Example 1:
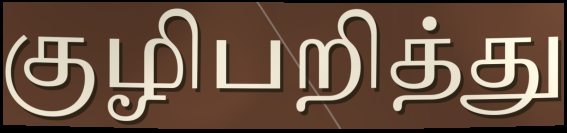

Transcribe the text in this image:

குழிபறித்து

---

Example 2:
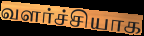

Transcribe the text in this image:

வளர்ச்சியாக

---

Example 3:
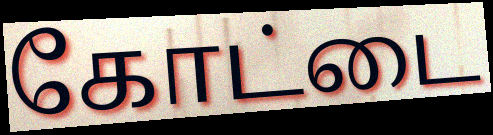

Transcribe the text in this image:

கோட்டை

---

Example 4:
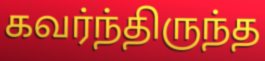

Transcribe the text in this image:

கவர்ந்திருந்த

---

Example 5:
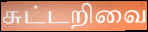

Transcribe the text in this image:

சுட்டறிவை